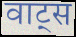
वाट्स